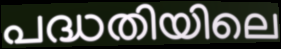
പദ്ധതിയിലെ